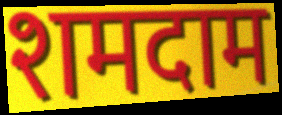
शमदाम